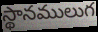
స్థానములుగ